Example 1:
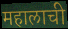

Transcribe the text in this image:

महालाची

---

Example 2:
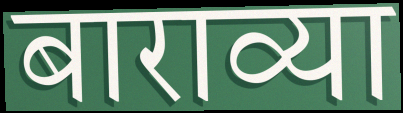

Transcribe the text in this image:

बाराव्या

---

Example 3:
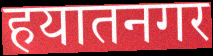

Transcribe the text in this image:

हयातनगर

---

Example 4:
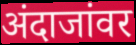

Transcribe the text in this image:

अंदाजांवर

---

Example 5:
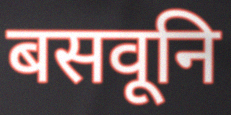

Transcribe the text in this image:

बसवूनि